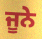
ਜੂਨੇ